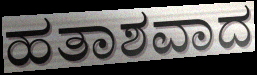
ಹತಾಶವಾದ